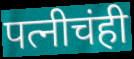
पत्नीचंही